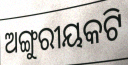
ଅଙ୍ଗୁରୀୟକଟି